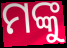
ମଙ୍କୁ